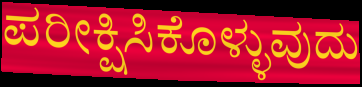
ಪರೀಕ್ಷಿಸಿಕೊಳ್ಳುವುದು